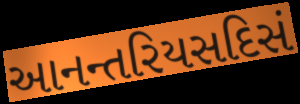
આનન્તરિયસદિસં